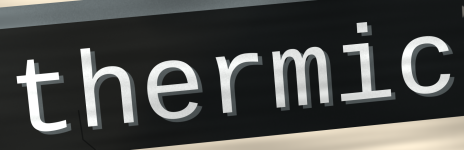
thermic